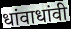
धांवाधांवी